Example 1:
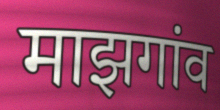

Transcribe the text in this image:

माझगांव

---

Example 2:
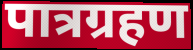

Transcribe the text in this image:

पात्रग्रहण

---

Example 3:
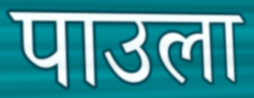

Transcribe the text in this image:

पाउला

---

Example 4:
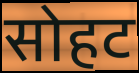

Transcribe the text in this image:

सोहट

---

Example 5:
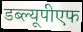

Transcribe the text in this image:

डब्ल्यूपीएफ